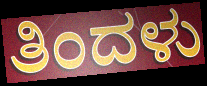
ತಿಂದಳು